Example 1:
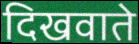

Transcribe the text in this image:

दिखवाते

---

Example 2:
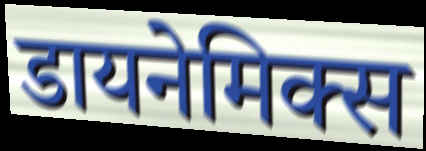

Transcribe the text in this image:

डायनेमिक्स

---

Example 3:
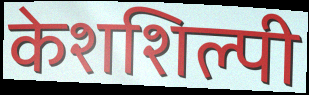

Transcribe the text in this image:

केशशिल्पी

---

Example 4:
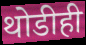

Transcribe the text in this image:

थोडीही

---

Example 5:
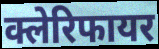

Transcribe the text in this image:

क्लेरिफायर